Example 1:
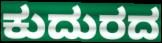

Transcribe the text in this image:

ಕುದುರದ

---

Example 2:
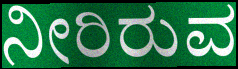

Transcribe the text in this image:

ನೀರಿರುವ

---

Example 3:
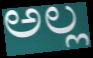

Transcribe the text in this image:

ಅಲ್ಲ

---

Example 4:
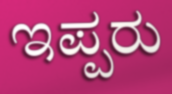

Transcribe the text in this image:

ಇಪ್ಪರು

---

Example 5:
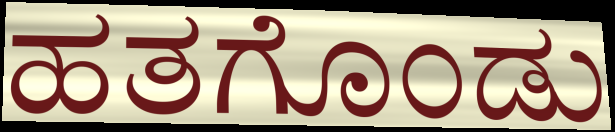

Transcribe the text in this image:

ಹತಗೊಂಡು